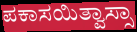
ಪಕಾಸಯಿತ್ವಾಸ್ಸಾ